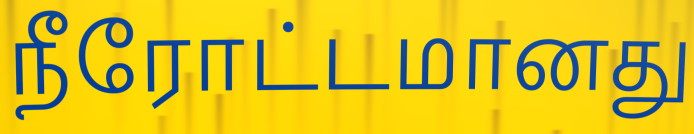
நீரோட்டமானது